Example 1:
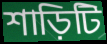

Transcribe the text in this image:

শাড়িটি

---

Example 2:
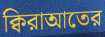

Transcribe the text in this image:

ক্বিরাআতের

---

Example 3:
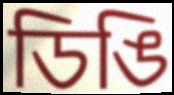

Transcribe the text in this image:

ডিঙি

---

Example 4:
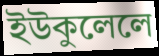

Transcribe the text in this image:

ইউকুলেলে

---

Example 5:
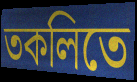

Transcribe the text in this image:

তকলিতে